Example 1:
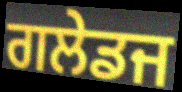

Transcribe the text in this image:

ਗਲੇਡਜ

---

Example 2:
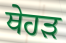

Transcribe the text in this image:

ਥੇਹੜ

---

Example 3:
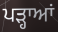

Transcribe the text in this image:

ਪੜ੍ਹਾਆਂ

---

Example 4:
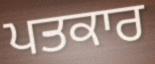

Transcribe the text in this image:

ਪਤਕਾਰ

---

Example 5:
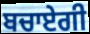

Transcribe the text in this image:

ਬਚਾਏਗੀ